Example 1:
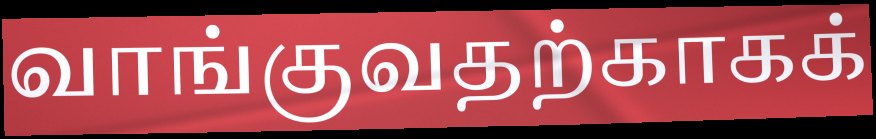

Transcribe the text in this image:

வாங்குவதற்காகக்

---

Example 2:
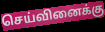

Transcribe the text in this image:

செய்வினைக்கு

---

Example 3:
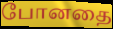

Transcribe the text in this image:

போனதை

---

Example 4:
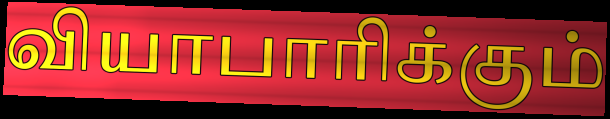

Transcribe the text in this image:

வியாபாரிக்கும்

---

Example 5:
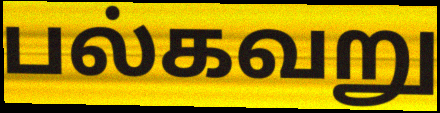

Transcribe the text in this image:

பல்கவறு